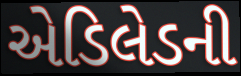
એડિલેડની